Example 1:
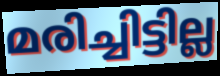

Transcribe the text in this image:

മരിച്ചിട്ടില്ല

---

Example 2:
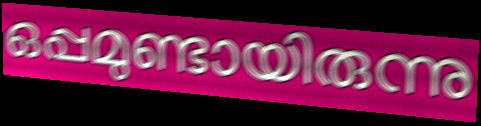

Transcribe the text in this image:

ഒപ്പമുണ്ടായിരുന്നു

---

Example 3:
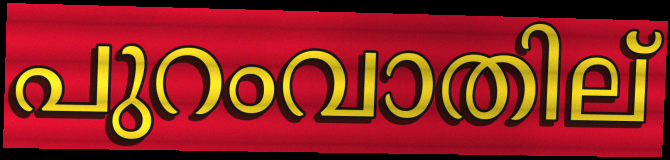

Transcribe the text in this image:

പുറംവാതില്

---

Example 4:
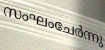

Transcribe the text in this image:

സംഘംചേർന്നു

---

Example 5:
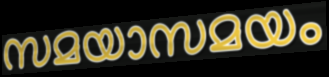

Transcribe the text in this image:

സമയാസമയം